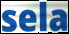
sela